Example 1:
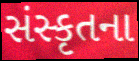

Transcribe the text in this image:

સંસ્‍કૃતના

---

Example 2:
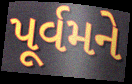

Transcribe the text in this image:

પૂર્વમને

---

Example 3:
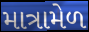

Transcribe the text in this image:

માત્રામેળ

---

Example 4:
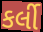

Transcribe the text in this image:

કર્લી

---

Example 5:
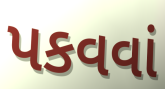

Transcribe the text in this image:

પકવવાં